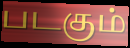
படகும்